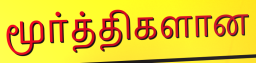
மூர்த்திகளான